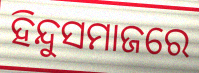
ହିନ୍ଦୁସମାଜରେ